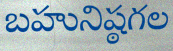
బహునిష్ఠగల